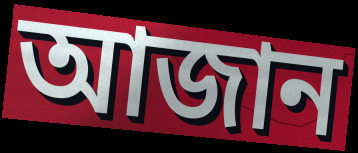
আজান